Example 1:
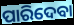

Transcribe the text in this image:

ପାରିଦେବା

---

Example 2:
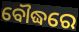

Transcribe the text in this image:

ବୌଦ୍ଧରେ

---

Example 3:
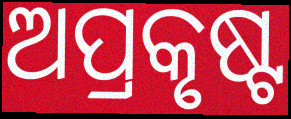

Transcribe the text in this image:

ଅପ୍ରକୃଷ୍ଟ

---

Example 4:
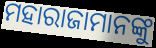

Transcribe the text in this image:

ମହାରାଜାମାନଙ୍କୁ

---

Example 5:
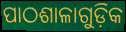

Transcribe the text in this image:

ପାଠଶାଳାଗୁଡ଼ିକ